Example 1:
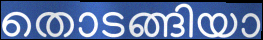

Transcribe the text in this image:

തൊടങ്ങിയാ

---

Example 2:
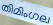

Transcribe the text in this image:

തിമിംഗല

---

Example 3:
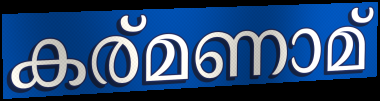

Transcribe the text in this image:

കര്മണാമ്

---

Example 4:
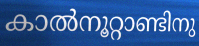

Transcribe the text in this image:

കാൽനൂറ്റാണ്ടിനു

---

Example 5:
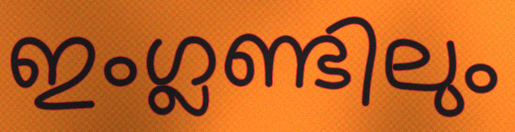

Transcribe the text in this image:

ഇംഗ്ലണ്ടിലും